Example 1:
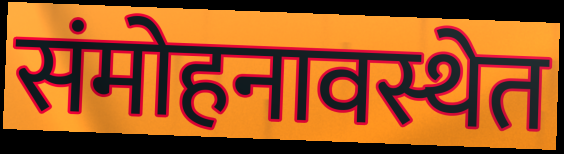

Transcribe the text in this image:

संमोहनावस्थेत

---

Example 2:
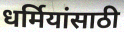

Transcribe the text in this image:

धर्मियांसाठी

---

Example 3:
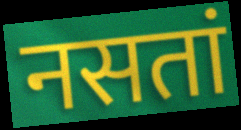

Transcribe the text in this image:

नसतां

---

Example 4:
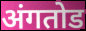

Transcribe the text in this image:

अंगतोड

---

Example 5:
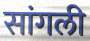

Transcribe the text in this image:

सांगली